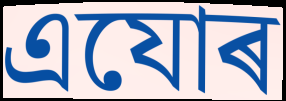
এযোৰ